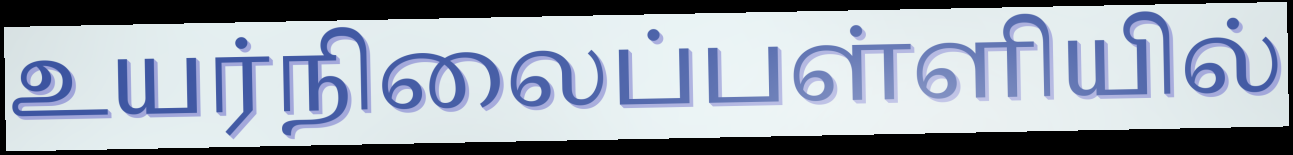
உயர்நிலைப்பள்ளியில்